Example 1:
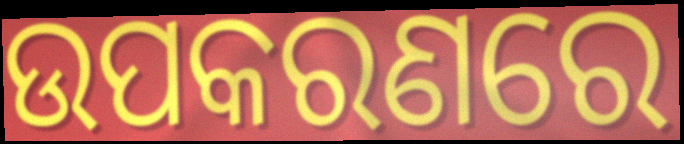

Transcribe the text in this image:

ଉପକରଣରେ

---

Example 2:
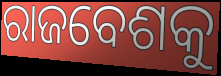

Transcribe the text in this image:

ରାଜବେଶକୁ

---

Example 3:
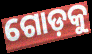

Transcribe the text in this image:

ଗୋଡ଼କୁ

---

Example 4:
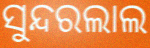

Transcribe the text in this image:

ସୁନ୍ଦରଲାଲ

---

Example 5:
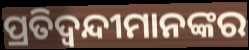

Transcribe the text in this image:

ପ୍ରତିଦ୍ୱନ୍ଦୀମାନଙ୍କର